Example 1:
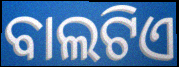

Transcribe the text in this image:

ବାଲଟିଏ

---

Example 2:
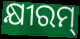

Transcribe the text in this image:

କ୍ଷୀରମ୍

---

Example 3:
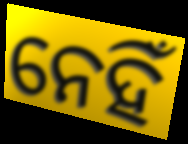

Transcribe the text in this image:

ନେହିଁ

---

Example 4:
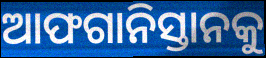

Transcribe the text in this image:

ଆଫଗାନିସ୍ତାନକୁ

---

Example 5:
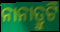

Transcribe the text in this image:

ନାନାତ୍ରୁଟି